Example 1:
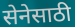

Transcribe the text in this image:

सेनेसाठी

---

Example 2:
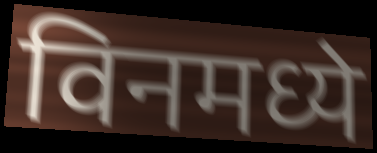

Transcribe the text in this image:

विनमध्ये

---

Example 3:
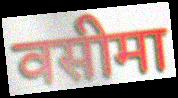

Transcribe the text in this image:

वसीमा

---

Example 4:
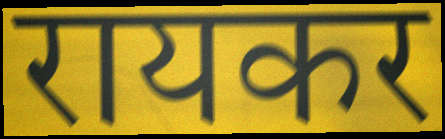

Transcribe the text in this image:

रायकर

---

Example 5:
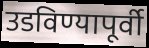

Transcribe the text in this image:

उडविण्यापूर्वी